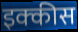
इक्‍कीस